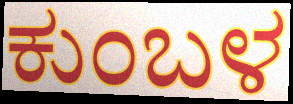
ಕುಂಬಳ